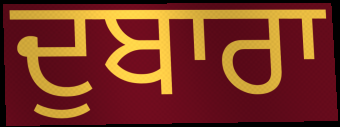
ਦੁਬਾਰਾ